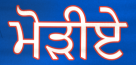
ਮੋੜੀਏ